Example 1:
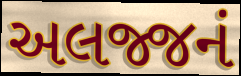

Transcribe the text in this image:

અલજ્જનં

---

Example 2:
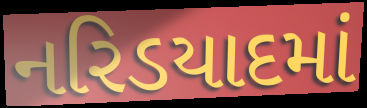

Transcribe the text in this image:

નરિડયાદમાં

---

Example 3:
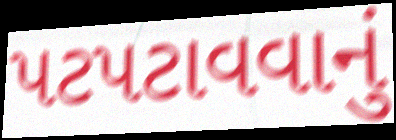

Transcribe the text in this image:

પટપટાવવાનું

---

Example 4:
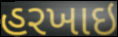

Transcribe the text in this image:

હરખાઇ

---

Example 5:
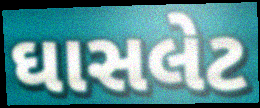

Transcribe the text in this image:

ઘાસલેટ